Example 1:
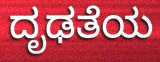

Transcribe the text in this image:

ದೃಢತೆಯ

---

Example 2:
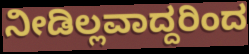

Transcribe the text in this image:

ನೀಡಿಲ್ಲವಾದ್ದರಿಂದ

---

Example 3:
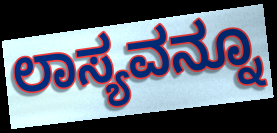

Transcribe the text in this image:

ಲಾಸ್ಯವನ್ನೂ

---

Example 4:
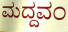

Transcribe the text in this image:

ಮದ್ದವಂ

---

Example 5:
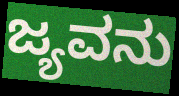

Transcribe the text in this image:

ಜ್ಯವನು